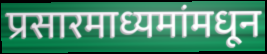
प्रसारमाध्यमांमधून